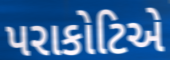
પરાકોટિએ